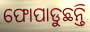
ଫୋପାଡୁଛନ୍ତି